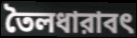
তৈলধারাবৎ